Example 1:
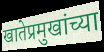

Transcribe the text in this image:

खातेप्रमुखांच्या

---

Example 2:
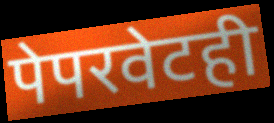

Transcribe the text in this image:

पेपरवेटही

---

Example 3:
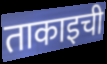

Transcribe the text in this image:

ताकाइची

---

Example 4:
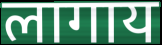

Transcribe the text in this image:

लागाय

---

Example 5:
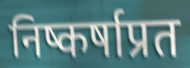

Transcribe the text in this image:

निष्कर्षाप्रत